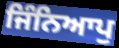
ਜਿੰਨਿਆਪੁ